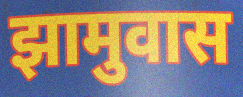
झामुवास